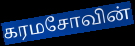
கரமசோவின்